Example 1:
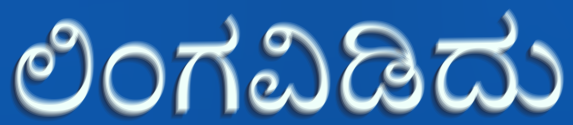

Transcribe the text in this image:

ಲಿಂಗವಿಡಿದು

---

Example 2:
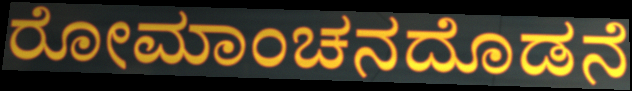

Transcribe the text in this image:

ರೋಮಾಂಚನದೊಡನೆ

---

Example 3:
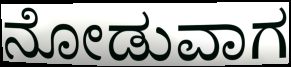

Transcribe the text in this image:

ನೋಡುವಾಗ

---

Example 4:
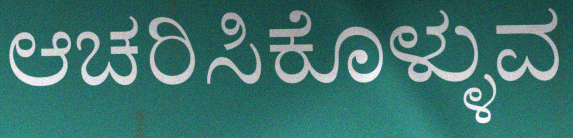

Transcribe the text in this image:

ಆಚರಿಸಿಕೊಳ್ಳುವ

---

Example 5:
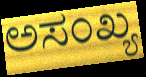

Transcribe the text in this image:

ಅಸಂಖ್ಯ